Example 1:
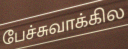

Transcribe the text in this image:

பேச்சுவாக்கில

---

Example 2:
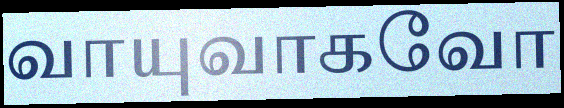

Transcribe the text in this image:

வாயுவாகவோ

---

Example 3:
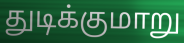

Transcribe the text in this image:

துடிக்குமாறு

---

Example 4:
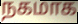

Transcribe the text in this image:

நகமாக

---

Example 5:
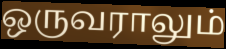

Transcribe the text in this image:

ஒருவராலும்